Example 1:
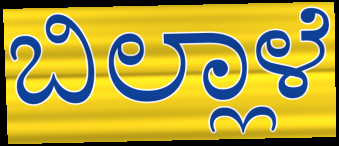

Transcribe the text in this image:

ಬಿಲ್ಲಾಳೆ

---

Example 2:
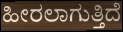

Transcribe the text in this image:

ಹೀರಲಾಗುತ್ತಿದೆ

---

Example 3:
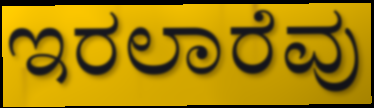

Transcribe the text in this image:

ಇರಲಾರೆವು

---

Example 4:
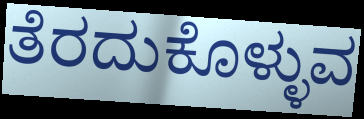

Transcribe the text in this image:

ತೆರದುಕೊಳ್ಳುವ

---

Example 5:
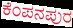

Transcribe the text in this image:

ಕೆಂಪನಪುರ